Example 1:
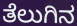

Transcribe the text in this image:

ತೆಲುಗಿನ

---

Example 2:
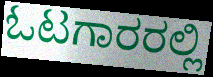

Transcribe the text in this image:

ಓಟಗಾರರಲ್ಲಿ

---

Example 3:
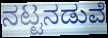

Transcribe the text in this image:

ನಟ್ಟನಡುವೆ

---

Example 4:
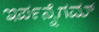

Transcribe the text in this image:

ಇರ್ಪನ್ನೆಗಮ್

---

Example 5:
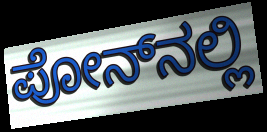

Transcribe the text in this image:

ಪೋನ್‍ನಲ್ಲಿ